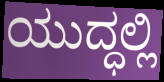
ಯುದ್ಧಲ್ಲಿ